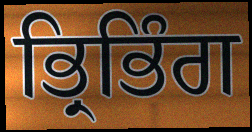
ਭ੍ਰਿਭਿੰਗ